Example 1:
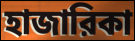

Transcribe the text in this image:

হাজারিকা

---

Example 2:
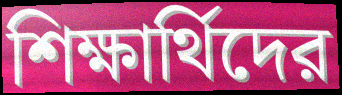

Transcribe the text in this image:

শিক্ষার্থিদের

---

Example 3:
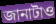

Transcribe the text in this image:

জানাটাও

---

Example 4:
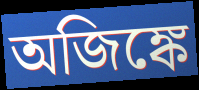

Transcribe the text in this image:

অজিঙ্কে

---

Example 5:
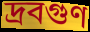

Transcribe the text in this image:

দ্রবগুণ